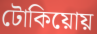
টোকিয়োয়